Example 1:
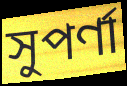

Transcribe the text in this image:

সুপর্ণা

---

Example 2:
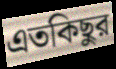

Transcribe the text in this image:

এতকিছুর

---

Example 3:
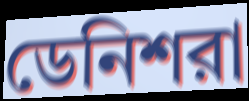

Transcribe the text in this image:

ডেনিশরা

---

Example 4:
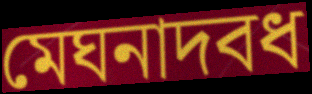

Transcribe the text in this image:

মেঘনাদবধ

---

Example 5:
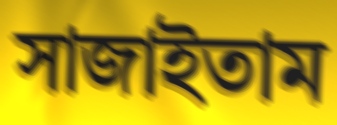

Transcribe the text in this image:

সাজাইতাম